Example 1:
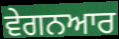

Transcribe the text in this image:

ਵੇਗਨਆਰ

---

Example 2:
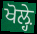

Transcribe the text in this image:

ਖੋਲ਼੍ਹੇ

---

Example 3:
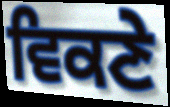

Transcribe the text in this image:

ਵਿਕਣੇ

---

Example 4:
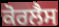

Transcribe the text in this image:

ਕੋਰਲੈਸ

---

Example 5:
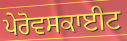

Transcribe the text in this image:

ਪੇਰੋਵਸਕਾਈਟ